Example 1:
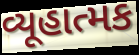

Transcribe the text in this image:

વ્યૂહાત્મક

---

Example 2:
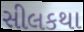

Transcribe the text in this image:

સીલકથા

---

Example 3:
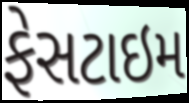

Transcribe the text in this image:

ફેસટાઇમ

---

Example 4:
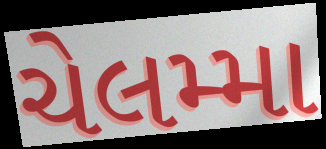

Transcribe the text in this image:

ચેલમ્મા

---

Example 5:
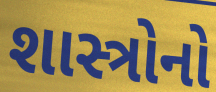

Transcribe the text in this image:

શાસ્ત્રોનો